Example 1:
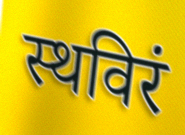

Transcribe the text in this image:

स्थविरं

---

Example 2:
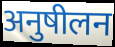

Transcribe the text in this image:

अनुषीलन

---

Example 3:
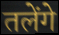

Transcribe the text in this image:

तलेंगे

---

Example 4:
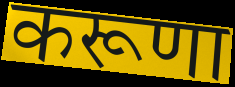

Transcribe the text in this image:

करूणा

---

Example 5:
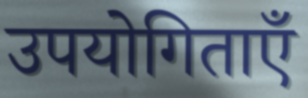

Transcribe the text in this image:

उपयोगिताएँ